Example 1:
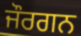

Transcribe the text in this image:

ਜੌਰਗਨ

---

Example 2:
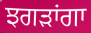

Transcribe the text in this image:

ਝਗੜਾਂਗਾ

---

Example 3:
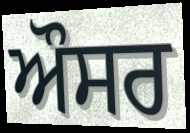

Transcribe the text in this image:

ਔਸਰ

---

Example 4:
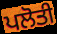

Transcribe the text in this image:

ਪਲੋਤੀ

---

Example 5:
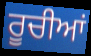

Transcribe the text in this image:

ਰੂਚੀਆਂ